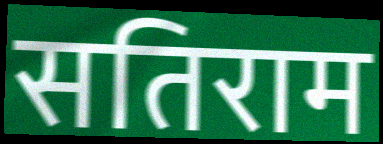
सतिराम